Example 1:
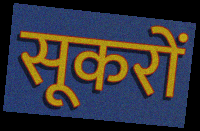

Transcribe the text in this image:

सूकरों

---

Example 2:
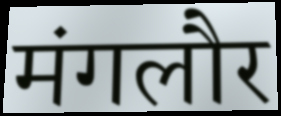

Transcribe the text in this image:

मंगलौर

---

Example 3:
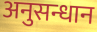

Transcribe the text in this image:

अनुसन्धान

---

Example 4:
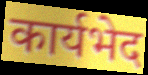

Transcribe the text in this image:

कार्यभेद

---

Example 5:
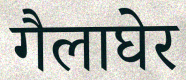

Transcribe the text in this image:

गैलाघेर